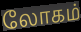
லோகம்